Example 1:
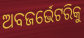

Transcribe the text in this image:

ଅବଜର୍ଭେଟରିକୁ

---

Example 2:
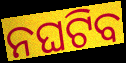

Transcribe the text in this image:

ନଘଟିବ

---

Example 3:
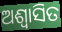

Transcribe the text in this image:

ଅଶ୍ୱାସିତ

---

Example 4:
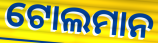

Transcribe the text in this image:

ଟୋଲମାନ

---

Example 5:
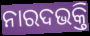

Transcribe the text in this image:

ନାରଦଭକ୍ତି